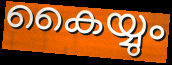
കൈയ്യും